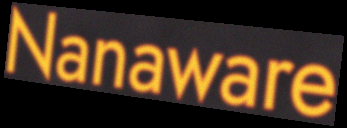
Nanaware